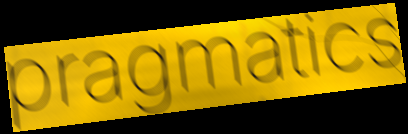
pragmatics